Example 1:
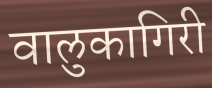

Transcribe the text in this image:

वालुकागिरी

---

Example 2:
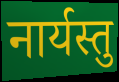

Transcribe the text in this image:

नार्यस्तु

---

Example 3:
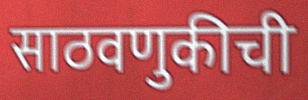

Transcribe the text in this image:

साठवणुकीची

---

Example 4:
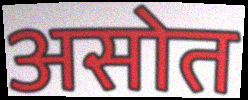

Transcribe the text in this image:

असोत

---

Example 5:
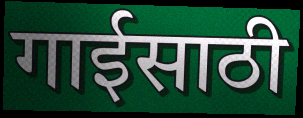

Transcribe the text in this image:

गाईसाठी